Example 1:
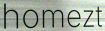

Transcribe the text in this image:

homezt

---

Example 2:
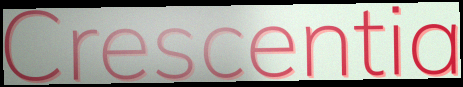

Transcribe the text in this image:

Crescentia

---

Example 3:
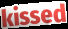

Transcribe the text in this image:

kissed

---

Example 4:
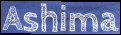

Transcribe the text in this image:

Ashima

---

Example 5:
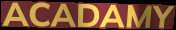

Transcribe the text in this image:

ACADAMY